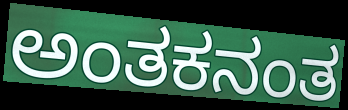
ಅಂತಕನಂತ